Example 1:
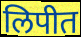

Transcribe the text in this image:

लिपीत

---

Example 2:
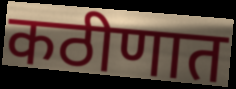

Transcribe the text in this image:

कठीणात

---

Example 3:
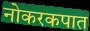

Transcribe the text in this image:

नोकरकपात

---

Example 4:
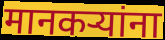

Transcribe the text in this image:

मानकऱ्यांना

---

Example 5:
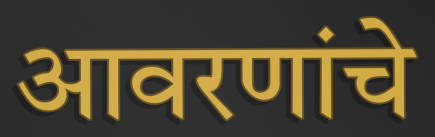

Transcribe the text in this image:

आवरणांचे